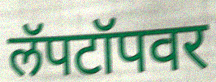
लॅपटॉपवर